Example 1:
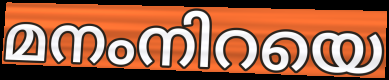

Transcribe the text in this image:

മനംനിറയെ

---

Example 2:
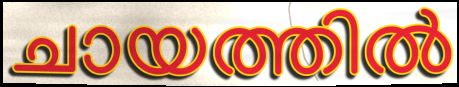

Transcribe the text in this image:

ചായത്തിൽ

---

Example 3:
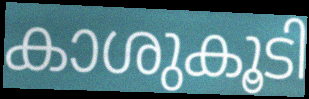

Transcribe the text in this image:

കാശുകൂടി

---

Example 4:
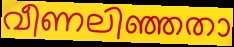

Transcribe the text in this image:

വീണലിഞ്ഞതാ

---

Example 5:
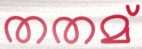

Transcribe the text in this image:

തതമ്